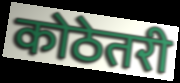
कोठेतरी